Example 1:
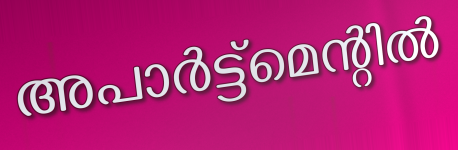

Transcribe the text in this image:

അപാർട്ട്മെന്റിൽ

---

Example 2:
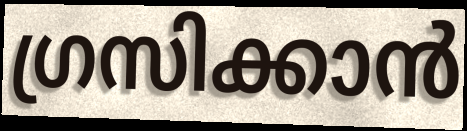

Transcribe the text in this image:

ഗ്രസിക്കാൻ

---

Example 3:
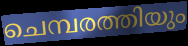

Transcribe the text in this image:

ചെമ്പരത്തിയും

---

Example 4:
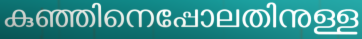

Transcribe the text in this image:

കുഞ്ഞിനെപ്പോലതിനുള്ള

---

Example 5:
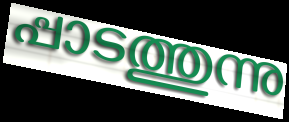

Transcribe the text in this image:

പ്പാടത്തുന്നു